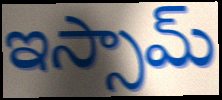
ఇస్సామ్